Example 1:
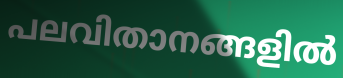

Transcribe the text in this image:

പലവിതാനങ്ങളിൽ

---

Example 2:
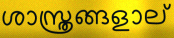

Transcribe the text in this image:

ശാസ്ത്രങ്ങളാല്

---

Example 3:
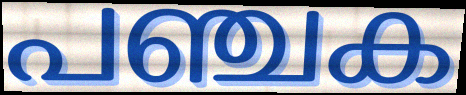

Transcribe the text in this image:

പഞ്ചക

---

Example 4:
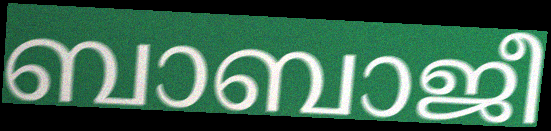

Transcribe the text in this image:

ബാബാജീ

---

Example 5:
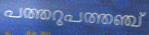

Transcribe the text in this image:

പത്തറുപത്തഞ്ച്